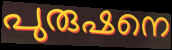
പുരുഷനെ